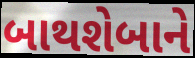
બાથશેબાને